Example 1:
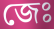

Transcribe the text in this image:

জেঃ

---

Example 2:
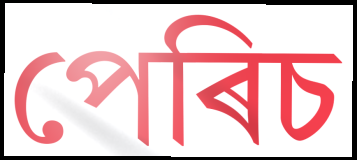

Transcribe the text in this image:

পেৰিচ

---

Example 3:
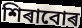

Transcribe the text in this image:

শিৰাবোৰ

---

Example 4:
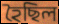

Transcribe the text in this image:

হৈছিল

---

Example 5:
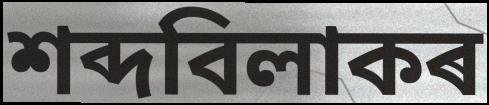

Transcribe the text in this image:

শব্দবিলাকৰ